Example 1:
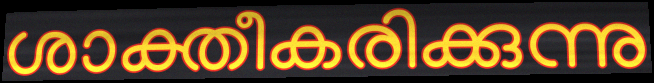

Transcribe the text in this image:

ശാക്തീകരിക്കുന്നു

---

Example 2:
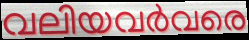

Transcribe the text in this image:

വലിയവർവരെ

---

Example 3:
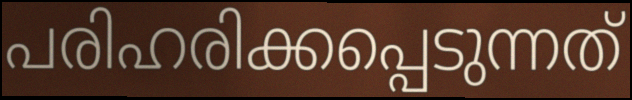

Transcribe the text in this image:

പരിഹരിക്കപ്പെടുന്നത്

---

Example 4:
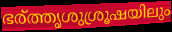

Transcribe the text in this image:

ഭര്ത്തൃശുശ്രൂഷയിലും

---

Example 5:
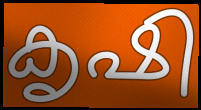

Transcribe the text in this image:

കൃഷി